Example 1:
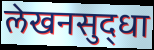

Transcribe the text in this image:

लेखनसुद्धा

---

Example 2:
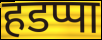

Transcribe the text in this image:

हडप्पा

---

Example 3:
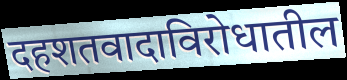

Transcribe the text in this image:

दहशतवादाविरोधातील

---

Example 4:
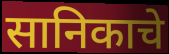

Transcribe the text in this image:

सानिकाचे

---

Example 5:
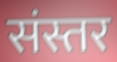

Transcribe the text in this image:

संस्तर